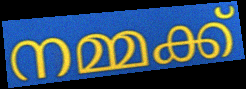
നമ്മക്ക്